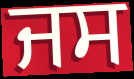
ਜਸ